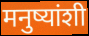
मनुष्यांशी